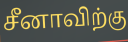
சீனாவிற்கு